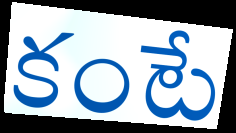
కంటే